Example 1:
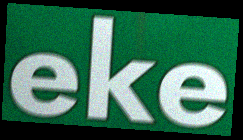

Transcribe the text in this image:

eke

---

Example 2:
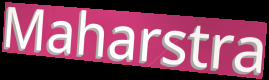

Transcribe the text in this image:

Maharstra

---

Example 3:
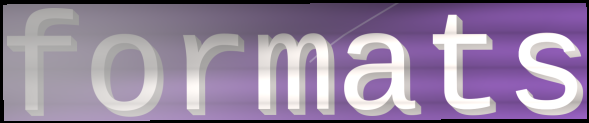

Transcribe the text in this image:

formats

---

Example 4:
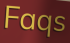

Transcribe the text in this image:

Faqs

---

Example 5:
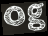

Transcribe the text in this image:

og